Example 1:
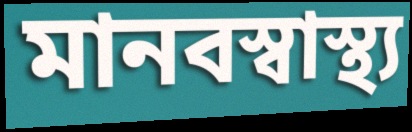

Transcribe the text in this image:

মানবস্বাস্থ্য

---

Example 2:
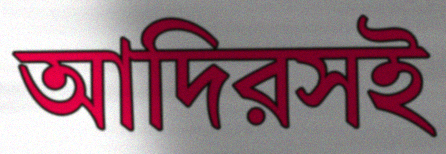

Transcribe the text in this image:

আদিরসই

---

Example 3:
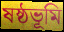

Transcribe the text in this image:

ষষ্ঠভূমি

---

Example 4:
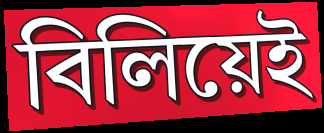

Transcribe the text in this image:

বিলিয়েই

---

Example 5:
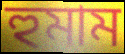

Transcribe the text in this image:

হুমাম